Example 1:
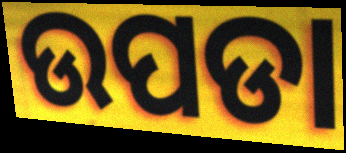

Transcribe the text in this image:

ଉପଡା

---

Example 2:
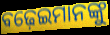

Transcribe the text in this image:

ବଢ଼େଇମାନଙ୍କୁ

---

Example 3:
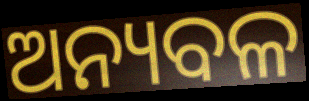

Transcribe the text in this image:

ଅନ୍ୟବଳ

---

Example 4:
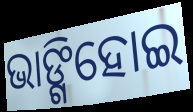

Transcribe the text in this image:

ଭାଙ୍ଗିହୋଇ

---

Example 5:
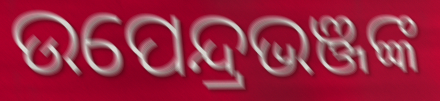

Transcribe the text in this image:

ଉପେନ୍ଦ୍ରଭଞ୍ଜଙ୍କ